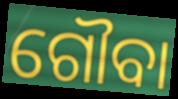
ଗୌବା